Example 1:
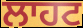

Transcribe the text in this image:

ਲਾਹਟ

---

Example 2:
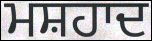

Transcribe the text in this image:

ਮਸ਼ਹਾਦ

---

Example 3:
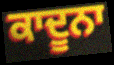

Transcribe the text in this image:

ਕਾਦੂਨਾ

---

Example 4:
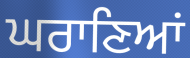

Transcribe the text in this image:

ਘਰਾਣਿਆਂ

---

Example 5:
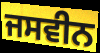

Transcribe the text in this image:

ਜਸਵੀਨ